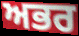
ਅਭਰ